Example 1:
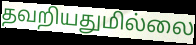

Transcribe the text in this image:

தவறியதுமில்லை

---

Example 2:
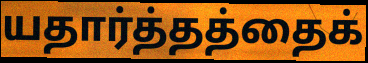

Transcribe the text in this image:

யதார்த்தத்தைக்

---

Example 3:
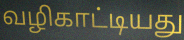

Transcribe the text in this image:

வழிகாட்டியது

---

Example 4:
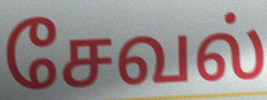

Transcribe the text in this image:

சேவல்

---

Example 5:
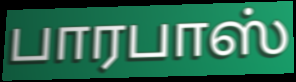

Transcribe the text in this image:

பாரபாஸ்